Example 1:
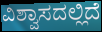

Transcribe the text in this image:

ವಿಶ್ವಾಸದಲ್ಲಿದೆ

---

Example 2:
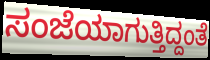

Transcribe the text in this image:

ಸಂಜೆಯಾಗುತ್ತಿದ್ದಂತೆ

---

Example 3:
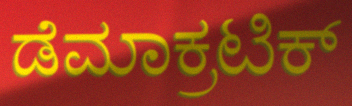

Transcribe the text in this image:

ಡೆಮಾಕ್ರಟಿಕ್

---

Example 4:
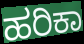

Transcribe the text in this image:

ಹರಿಕಾ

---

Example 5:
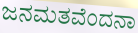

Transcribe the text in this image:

ಜನಮತವೆಂದನಾ